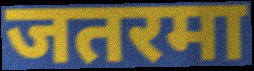
जतरमा